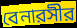
বেনারসীর